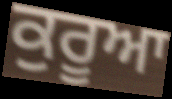
ਕੁਰੂਆ